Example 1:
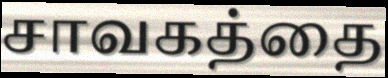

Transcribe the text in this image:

சாவகத்தை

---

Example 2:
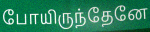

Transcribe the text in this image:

போயிருந்தேனே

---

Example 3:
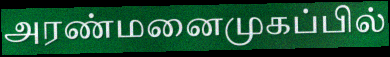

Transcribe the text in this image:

அரண்மனைமுகப்பில்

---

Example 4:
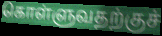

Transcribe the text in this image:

கொள்ளுவதற்குச்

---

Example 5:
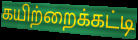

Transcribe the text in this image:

கயிற்றைக்கட்டி